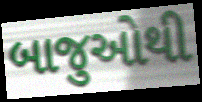
બાજુઓથી